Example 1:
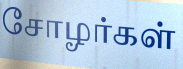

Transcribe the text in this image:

சோழர்கள்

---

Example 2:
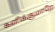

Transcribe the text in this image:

களிக்குமாறே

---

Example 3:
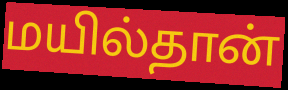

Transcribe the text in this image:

மயில்தான்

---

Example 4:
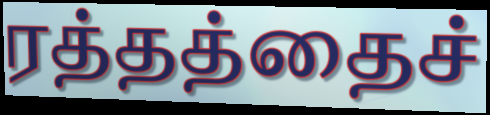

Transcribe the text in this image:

ரத்தத்தைச்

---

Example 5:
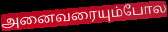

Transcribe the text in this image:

அனைவரையும்போல